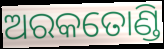
ଅରକତୋଣ୍ଡି